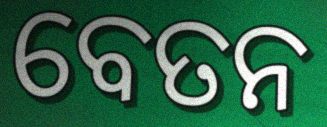
ବେତନ